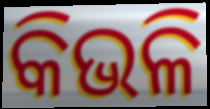
କିଭଳି